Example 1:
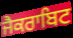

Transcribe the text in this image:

ਜੈਕਰਾਬਿਟ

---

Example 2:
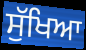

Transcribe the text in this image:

ਸੁੱਖਿਆ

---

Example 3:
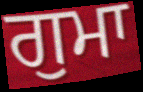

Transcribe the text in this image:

ਗੁਮਾ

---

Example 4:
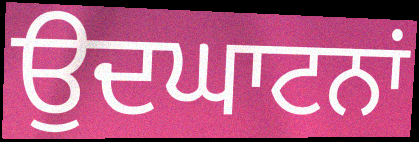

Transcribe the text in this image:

ਉਦਘਾਟਨਾਂ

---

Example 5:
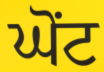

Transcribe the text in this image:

ਘੋਂਟ